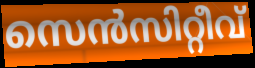
സെൻസിറ്റീവ്